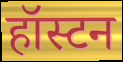
हॉस्टन